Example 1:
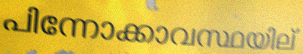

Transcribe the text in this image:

പിന്നോക്കാവസ്ഥയില്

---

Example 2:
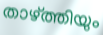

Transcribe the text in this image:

താഴ്ത്തിയും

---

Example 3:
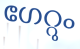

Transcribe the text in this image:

ഗേറ്റും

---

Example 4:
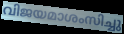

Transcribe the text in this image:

വിജയമാശംസിച്ചു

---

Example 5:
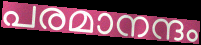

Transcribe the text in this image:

പരമാനന്ദം